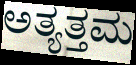
ಅತ್ಯತ್ತಮ